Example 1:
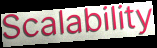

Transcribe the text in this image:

Scalability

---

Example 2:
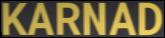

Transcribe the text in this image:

KARNAD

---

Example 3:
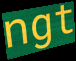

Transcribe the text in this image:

ngt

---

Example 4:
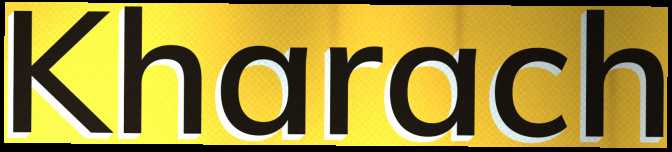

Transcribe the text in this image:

Kharach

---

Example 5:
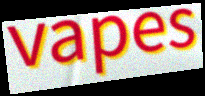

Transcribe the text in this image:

vapes